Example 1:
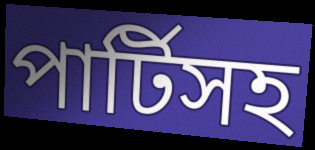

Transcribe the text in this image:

পার্টিসহ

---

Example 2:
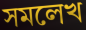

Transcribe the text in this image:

সমলেখ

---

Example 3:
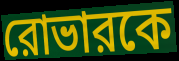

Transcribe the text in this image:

রোভারকে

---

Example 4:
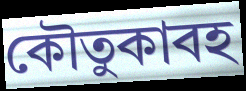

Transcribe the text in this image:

কৌতুকাবহ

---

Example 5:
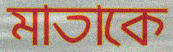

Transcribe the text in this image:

মাতাকে